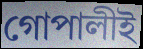
গোপালীই